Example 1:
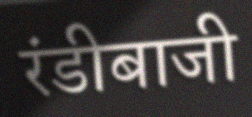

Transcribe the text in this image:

रंडीबाजी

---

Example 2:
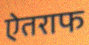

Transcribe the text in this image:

ऐतराफ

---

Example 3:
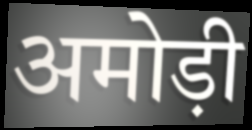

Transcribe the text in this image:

अमोड़ी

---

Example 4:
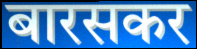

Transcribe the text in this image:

बारसकर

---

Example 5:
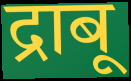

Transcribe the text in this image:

द्राबू